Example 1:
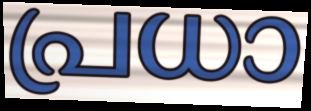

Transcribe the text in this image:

പ്രധാ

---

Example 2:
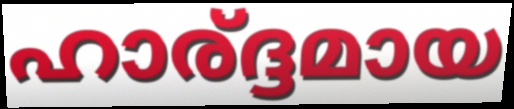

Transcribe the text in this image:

ഹാര്ദ്ദമായ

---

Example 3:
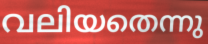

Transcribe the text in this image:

വലിയതെന്നു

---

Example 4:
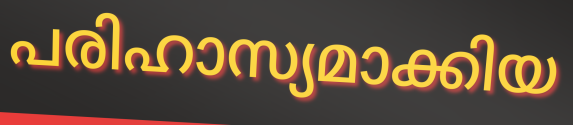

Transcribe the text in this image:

പരിഹാസ്യമാക്കിയ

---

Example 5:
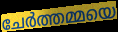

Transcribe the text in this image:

ചേർത്തമ്മയെ